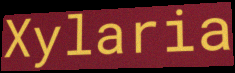
Xylaria